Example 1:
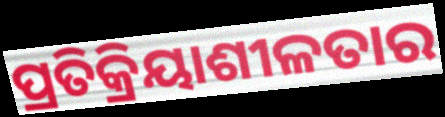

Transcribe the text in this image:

ପ୍ରତିକ୍ରିୟାଶୀଳତାର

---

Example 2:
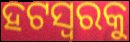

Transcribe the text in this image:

ହଟସ୍ଵରକୁ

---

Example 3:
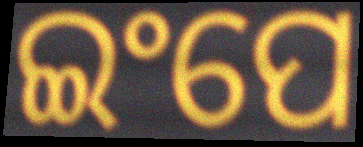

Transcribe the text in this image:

ଇଂପେ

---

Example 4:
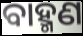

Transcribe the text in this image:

ବାହ୍ମଣ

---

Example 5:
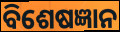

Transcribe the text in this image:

ବିଶେଷଜ୍ଞାନ